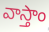
వాస్తాం